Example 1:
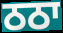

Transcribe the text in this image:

ਠਠਾ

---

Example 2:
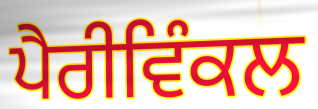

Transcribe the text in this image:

ਪੈਰੀਵਿੰਕਲ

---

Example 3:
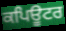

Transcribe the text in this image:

ਕਪਿਊਟਰ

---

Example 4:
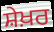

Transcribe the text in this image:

ਸ਼ੇਖ਼ਰ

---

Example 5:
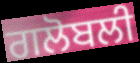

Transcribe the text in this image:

ਗਲੋਬਲੀ